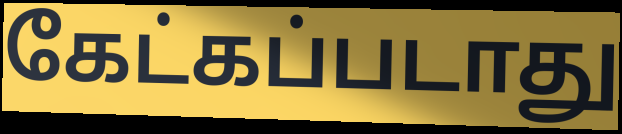
கேட்கப்படாது